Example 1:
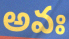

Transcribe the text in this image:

అవః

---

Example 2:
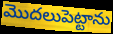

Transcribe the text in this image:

మొదలుపెట్టాను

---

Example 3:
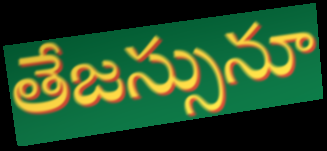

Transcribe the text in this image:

తేజస్సునూ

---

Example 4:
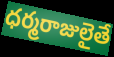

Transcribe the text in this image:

ధర్మరాజులైతే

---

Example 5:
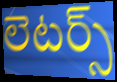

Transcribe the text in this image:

లెటర్స్